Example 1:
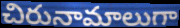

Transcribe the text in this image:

చిరునామాలుగా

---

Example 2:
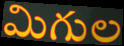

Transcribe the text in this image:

మిగుల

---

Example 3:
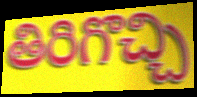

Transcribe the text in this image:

తిరిగొచ్చి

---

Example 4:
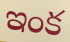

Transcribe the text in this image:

ఇంక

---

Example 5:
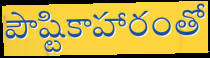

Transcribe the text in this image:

పౌష్టికాహారంతో